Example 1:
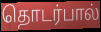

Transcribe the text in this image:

தொடர்பால்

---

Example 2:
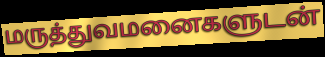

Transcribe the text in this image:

மருத்துவமனைகளுடன்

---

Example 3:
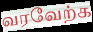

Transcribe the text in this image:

வரவேற்க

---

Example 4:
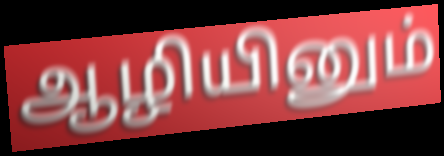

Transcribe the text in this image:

ஆழியினும்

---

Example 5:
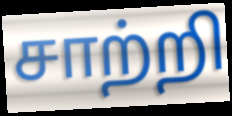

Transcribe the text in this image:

சாற்றி